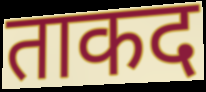
ताकद